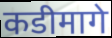
कडीमागे